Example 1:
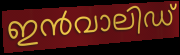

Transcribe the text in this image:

ഇൻവാലിഡ്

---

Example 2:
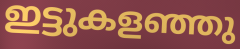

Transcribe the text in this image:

ഇട്ടുകളഞ്ഞു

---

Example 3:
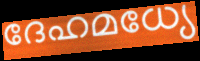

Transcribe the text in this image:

ദേഹമധ്യേ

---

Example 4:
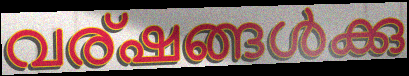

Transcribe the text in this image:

വര്ഷങ്ങൾക്കു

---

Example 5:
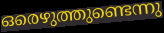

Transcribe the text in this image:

ഒരെഴുത്തുണ്ടെന്നു